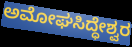
ಅಮೋಘಸಿದ್ಧೇಶ್ವರ